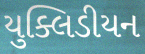
યુક્લિડીયન